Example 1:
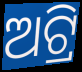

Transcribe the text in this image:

ଅଟ୍ରି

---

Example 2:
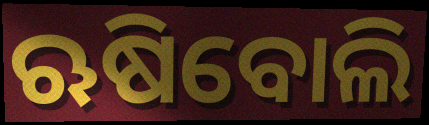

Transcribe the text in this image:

ଋଷିବୋଲି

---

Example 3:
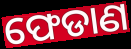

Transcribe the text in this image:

ଫେଡାଣ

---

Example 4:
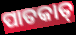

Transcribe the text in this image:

ପାତକାତ୍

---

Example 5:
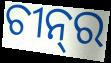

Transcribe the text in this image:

ଚୀନ୍‌ର